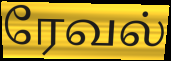
ரேவல்